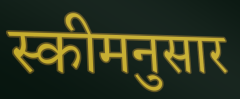
स्कीमनुसार